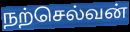
நற்செல்வன்